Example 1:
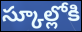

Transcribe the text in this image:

స్కూల్లోకి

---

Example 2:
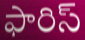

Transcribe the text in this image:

ఫారిస్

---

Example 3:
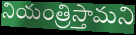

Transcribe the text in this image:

నియంత్రిస్తామని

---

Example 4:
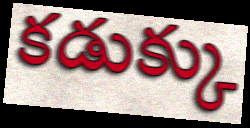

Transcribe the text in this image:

కడుక్కు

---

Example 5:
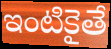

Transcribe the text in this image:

ఇంటికైతే